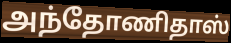
அந்தோணிதாஸ்